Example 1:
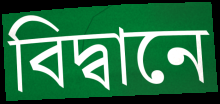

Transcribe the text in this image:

বিদ্বানে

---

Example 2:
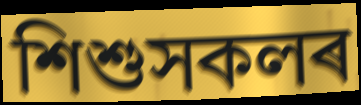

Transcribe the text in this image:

শিশুসকলৰ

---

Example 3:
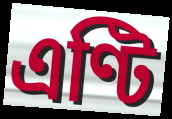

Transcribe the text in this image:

এণ্টি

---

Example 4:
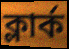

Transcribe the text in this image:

ক্লাৰ্ক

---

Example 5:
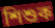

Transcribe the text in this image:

শিশুক